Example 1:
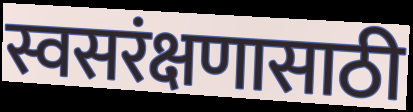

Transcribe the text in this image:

स्वसरंक्षणासाठी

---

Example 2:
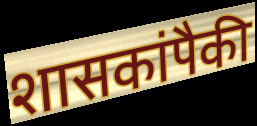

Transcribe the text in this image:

शासकांपैकी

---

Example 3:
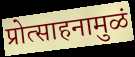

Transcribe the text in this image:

प्रोत्साहनामुळं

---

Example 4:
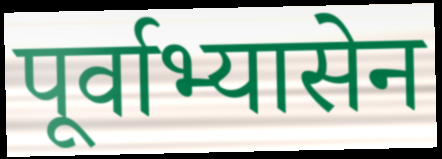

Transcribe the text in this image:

पूर्वाभ्यासेन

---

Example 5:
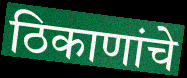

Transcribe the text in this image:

ठिकाणांचे